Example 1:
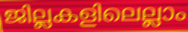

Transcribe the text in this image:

ജില്ലകളിലെല്ലാം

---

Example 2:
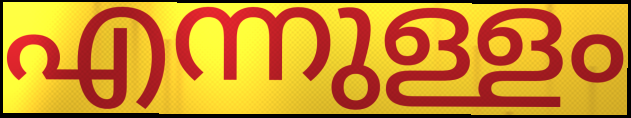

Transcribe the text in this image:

എന്നുള്ളം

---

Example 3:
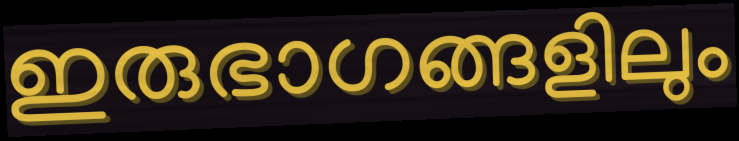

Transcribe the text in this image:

ഇരുഭാഗങ്ങളിലും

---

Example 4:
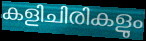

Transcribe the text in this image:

കളിചിരികളും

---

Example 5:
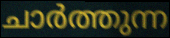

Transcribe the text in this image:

ചാർത്തുന്ന